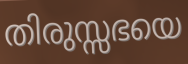
തിരുസ്സഭയെ